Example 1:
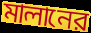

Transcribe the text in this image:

মালানের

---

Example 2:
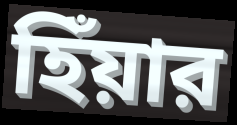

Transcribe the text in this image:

হিঁয়ার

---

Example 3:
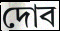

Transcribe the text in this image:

দোব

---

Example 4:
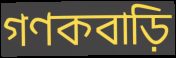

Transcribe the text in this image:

গণকবাড়ি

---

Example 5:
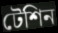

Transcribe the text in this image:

টেশিন